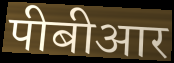
पीबीआर